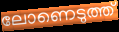
ലോണെടുത്ത്